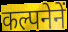
कल्पनेनें